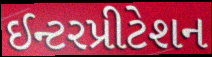
ઈન્ટરપ્રીટેશન